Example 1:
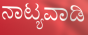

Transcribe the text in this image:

ನಾಟ್ಯವಾಡಿ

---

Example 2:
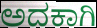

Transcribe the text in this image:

ಅದಕಾಗಿ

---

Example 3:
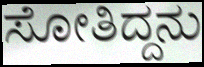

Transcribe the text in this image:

ಸೋತಿದ್ದನು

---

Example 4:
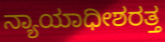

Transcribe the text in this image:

ನ್ಯಾಯಾಧೀಶರತ್ತ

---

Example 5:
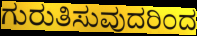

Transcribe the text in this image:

ಗುರುತಿಸುವುದರಿಂದ